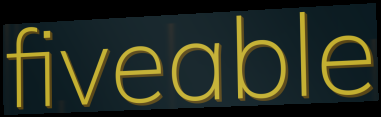
fiveable